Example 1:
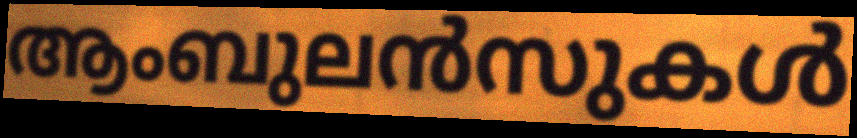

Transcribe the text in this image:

ആംബുലൻസുകൾ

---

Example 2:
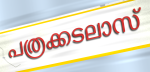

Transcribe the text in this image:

പത്രക്കടലാസ്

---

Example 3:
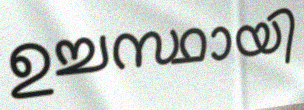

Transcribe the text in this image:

ഉച്ചസ്ഥായി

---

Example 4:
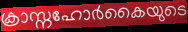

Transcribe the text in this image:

ക്രാസ്നഹോർകൈയുടെ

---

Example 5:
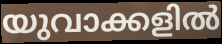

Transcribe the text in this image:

യുവാക്കളിൽ